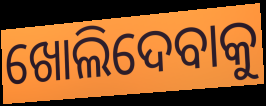
ଖୋଲିଦେବାକୁ